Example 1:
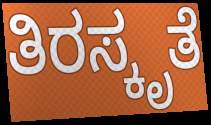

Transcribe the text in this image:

ತಿರಸ್ಕೃತೆ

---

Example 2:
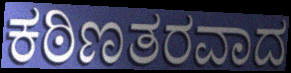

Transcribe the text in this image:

ಕಠಿಣತರವಾದ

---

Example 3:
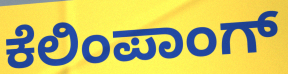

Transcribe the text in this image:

ಕೆಲಿಂಪಾಂಗ್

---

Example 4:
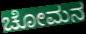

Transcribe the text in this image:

ಚೋಮನ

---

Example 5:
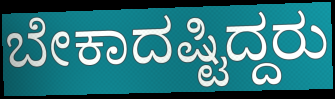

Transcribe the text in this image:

ಬೇಕಾದಷ್ಟಿದ್ದರು